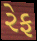
રેફ